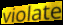
violate